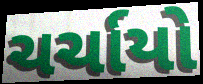
ચર્ચાયો